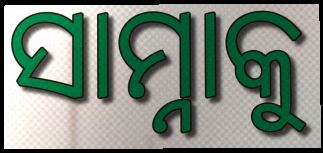
ସାମ୍ନାକୁ